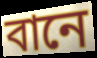
বানে